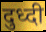
दुध्दी